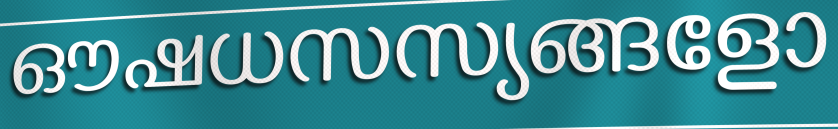
ഔഷധസസ്യങ്ങളോ